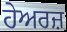
ਹੇਅਰਜ਼